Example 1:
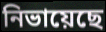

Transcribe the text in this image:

নিভায়েছে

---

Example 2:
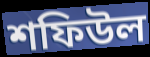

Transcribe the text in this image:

শফিউল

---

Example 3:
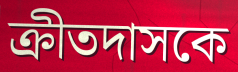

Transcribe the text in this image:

ক্রীতদাসকে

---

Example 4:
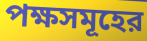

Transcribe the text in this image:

পক্ষসমূহের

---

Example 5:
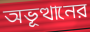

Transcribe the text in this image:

অভূত্থানের